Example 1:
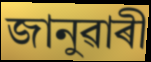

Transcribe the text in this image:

জানুৱাৰী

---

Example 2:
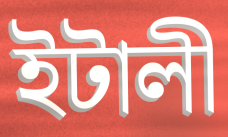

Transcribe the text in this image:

ইটালী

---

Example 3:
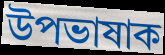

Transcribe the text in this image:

উপভাষাক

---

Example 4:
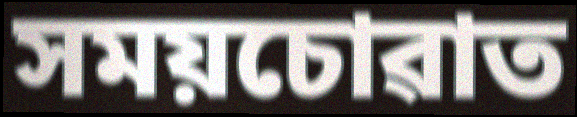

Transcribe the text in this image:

সময়চোৱাত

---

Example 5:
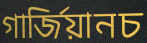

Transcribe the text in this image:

গাৰ্জিয়ানচ